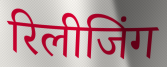
रिलीजिंग